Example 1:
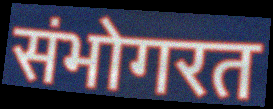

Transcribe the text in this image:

संभोगरत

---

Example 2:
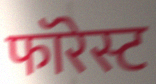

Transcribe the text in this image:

फॉरेस्ट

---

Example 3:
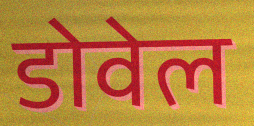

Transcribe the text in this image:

डोवेल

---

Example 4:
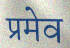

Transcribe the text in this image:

प्रमेव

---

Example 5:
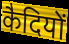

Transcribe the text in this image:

कैदियों